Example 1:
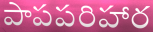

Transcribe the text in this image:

పాపపరిహార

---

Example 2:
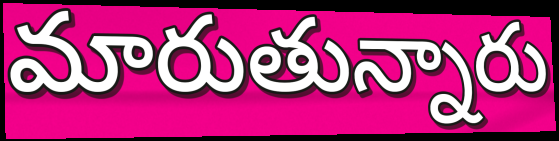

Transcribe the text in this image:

మారుతున్నారు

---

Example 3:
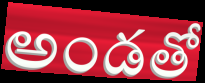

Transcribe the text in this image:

అండతో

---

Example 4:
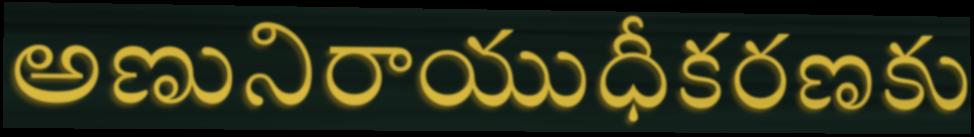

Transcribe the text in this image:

అణునిరాయుధీకరణకు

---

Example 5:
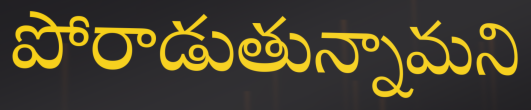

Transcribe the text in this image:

పోరాడుతున్నామని